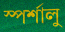
স্পর্শালু